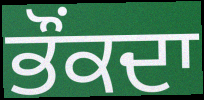
ਭੌਂਕਦਾ